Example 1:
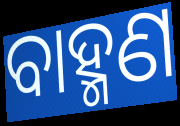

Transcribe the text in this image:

ବାହ୍ମଣ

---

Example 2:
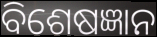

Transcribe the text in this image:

ବିଶେଷଜ୍ଞାନ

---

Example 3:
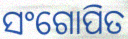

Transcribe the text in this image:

ସଂଗୋପିତ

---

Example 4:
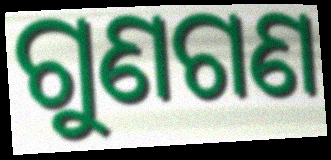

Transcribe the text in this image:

ଗୁଣଗଣ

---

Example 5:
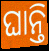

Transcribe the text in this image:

ଘାନ୍ତି